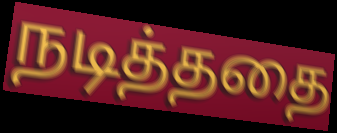
நடித்ததை